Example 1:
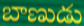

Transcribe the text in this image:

బాణుడు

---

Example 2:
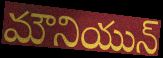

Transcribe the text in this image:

మౌనియున్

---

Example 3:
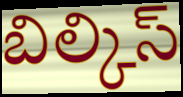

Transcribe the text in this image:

బిల్కిస్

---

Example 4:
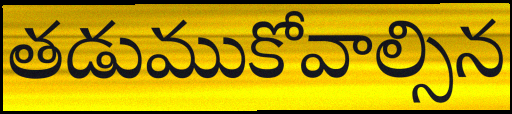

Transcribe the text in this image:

తడుముకోవాల్సిన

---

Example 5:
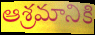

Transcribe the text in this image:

ఆశ్రమానికి